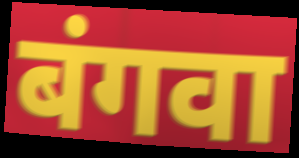
बंगवा